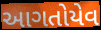
આગતોયેવ